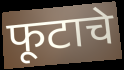
फूटाचे